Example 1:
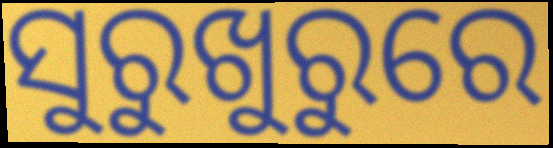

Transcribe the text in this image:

ସୁରୁଖୁରୁରେ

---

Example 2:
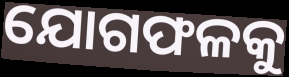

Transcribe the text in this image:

ଯୋଗଫଳକୁ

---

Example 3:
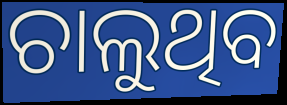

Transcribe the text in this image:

ଚାଲୁଥିବ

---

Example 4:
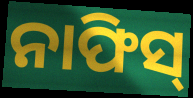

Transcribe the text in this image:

ନାଫିସ୍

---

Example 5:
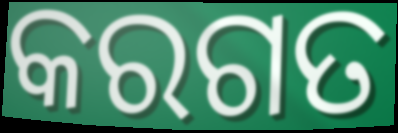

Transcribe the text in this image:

କରଗତ